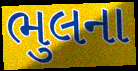
ભુલના